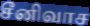
சீனிவாச